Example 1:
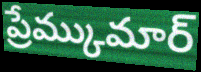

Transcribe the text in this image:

ప్రేమ్కుమార్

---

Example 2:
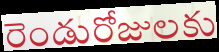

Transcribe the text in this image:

రెండురోజులకు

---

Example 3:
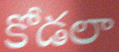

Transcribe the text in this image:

కోడలా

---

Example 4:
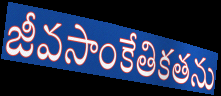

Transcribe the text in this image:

జీవసాంకేతికతను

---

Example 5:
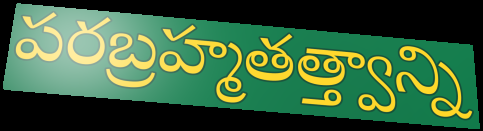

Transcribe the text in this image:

పరబ్రహ్మతత్త్వాన్ని